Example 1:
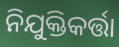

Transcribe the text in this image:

ନିଯୁକ୍ତିକର୍ତ୍ତା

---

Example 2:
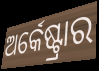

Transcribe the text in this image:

ଅର୍କେଷ୍ଟ୍ରାର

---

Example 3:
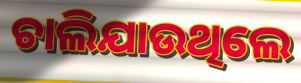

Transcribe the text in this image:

ଚାଲିଯାଉଥିଲେ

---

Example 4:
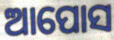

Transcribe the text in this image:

ଆପୋସ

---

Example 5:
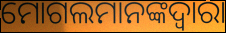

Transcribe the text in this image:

ମୋଗଲମାନଙ୍କଦ୍ୱାରା